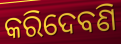
କରିଦେବଣି